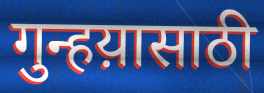
गुन्हय़ासाठी